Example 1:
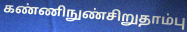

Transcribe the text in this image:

கண்ணிநுண்சிறுதாம்பு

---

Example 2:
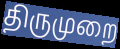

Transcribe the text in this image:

திருமுறை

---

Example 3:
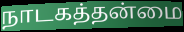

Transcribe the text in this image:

நாடகத்தன்மை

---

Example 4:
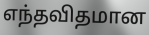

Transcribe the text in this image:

எந்தவிதமான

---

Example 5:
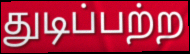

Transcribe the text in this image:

துடிப்பற்ற